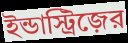
ইন্ডাস্ট্রিজ়ের